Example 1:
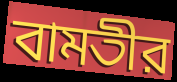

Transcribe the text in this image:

বামতীর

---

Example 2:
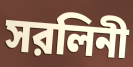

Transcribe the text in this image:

সরলিনী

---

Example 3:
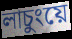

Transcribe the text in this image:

লাচুংয়ে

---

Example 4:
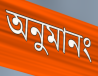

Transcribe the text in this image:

অনুমানং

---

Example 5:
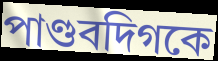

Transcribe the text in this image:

পাণ্ডবদিগকে